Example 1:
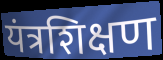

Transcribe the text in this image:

यंत्रशिक्षण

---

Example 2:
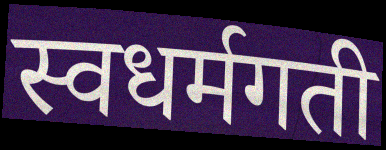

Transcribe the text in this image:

स्वधर्मगती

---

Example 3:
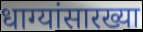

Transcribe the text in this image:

धाग्यांसारख्या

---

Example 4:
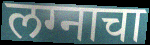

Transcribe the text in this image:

लग्नाचा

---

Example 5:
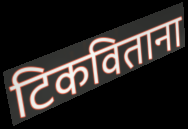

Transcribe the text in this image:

टिकविताना